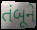
તંબૂને